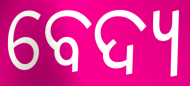
ବେଦ୍ୟ